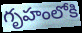
గృహంలోకి